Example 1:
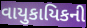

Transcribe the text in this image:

વાયુકાયિકની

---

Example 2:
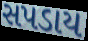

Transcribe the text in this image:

સપડાય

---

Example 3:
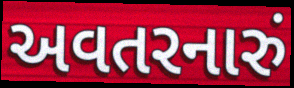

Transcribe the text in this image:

અવતરનારું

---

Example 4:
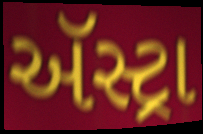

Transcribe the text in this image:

ઍસ્ટ્રા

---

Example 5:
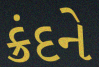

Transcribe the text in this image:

ક્રંદને